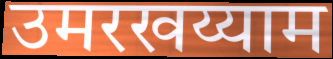
उमरखय्याम